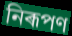
নিৰূপণ